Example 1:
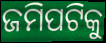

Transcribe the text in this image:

ଜମିପଟିକୁ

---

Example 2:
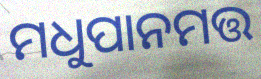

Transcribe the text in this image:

ମଧୁପାନମତ୍ତ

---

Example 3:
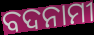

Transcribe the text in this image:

ବଦନାମୀ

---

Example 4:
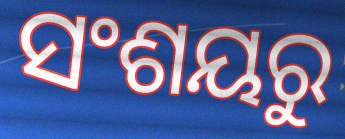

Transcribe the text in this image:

ସଂଶୟରୁ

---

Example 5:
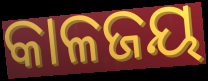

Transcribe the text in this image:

କାଳଜୟ